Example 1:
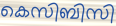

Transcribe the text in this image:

കെസിബിസി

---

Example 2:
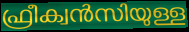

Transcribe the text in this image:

ഫ്രീക്വൻസിയുള്ള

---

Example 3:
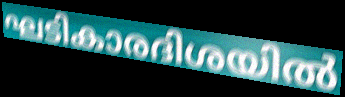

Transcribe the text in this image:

ഘടികാരദിശയിൽ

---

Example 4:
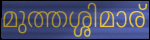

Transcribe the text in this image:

മുത്തശ്ശിമാര്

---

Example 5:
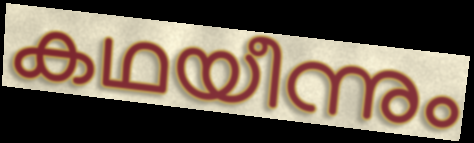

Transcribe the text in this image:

കഥയീന്നും